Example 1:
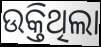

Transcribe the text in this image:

ଉକ୍ତିଥିଲା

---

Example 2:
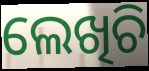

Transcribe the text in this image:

ଲେଖିଚି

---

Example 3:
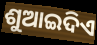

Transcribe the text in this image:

ଶୁଆଇଦିଏ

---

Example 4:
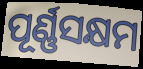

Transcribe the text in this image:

ପୂର୍ଣ୍ଣସକ୍ଷମ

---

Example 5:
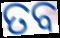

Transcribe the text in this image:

ତବ